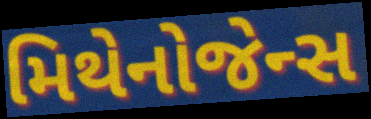
મિથેનોજેન્સ